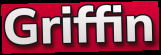
Griffin